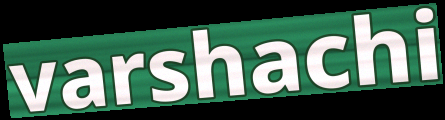
varshachi